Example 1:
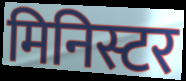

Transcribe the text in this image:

मिनिस्टर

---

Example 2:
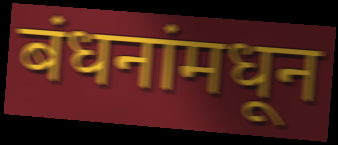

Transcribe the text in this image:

बंधनांमधून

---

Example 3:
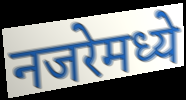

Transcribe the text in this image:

नजरेमध्ये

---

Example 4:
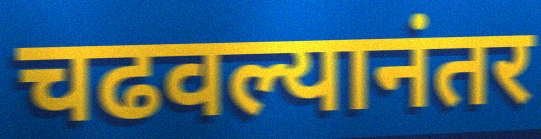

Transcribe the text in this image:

चढवल्यानंतर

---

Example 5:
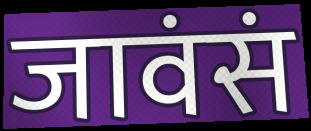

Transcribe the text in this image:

जावंसं